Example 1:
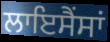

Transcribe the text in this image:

ਲਾਇਸੈਂਸਾਂ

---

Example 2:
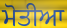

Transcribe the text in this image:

ਮੋਤੀਆ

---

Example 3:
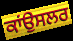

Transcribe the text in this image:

ਕਾਂਉਸਲਰ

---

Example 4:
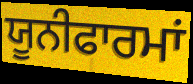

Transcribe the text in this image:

ਯੂਨੀਫਾਰਮਾਂ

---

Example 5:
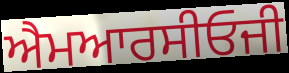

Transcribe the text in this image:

ਐਮਆਰਸੀਓਜੀ